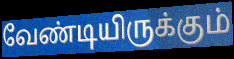
வேண்டியிருக்கும்